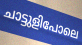
ചാട്ടുളിപോലെ